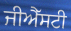
ਜੀਐੱਸਟੀ